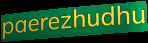
paerezhudhu